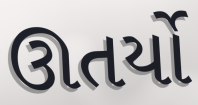
ઊતર્યો